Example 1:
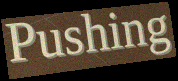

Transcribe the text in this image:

Pushing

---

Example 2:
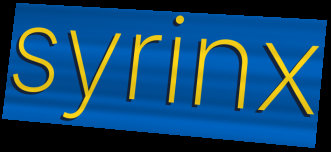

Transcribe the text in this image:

syrinx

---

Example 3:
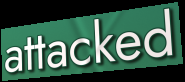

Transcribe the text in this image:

attacked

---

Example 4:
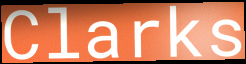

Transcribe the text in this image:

Clarks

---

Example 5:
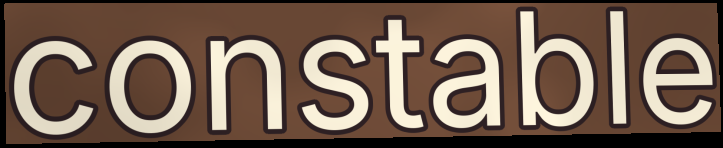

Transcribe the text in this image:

constable